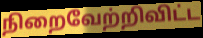
நிறைவேற்றிவிட்ட